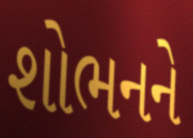
શોભનને